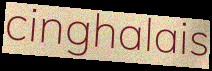
cinghalais